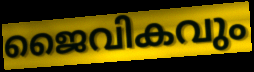
ജൈവികവും